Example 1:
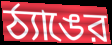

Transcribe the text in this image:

ঠ্যাঙের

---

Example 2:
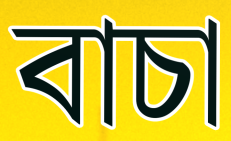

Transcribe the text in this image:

বাচা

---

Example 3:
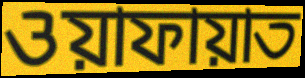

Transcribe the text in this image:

ওয়াফায়াত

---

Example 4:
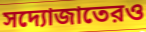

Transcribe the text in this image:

সদ্যোজাতেরও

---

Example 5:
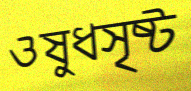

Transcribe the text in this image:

ওষুধসৃষ্ট